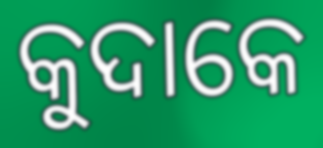
କୁଦାକେ